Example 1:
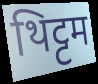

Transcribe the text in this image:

थिट्टम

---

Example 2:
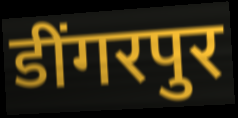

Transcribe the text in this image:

डींगरपुर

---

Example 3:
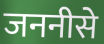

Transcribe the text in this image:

जननीसे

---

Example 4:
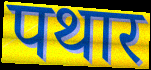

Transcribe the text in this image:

पथार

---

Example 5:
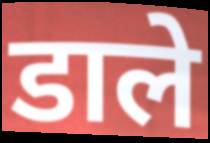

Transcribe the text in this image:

डाले